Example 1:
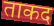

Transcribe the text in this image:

ताकद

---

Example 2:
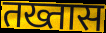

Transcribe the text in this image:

तख्तास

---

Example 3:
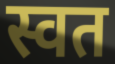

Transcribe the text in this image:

स्वत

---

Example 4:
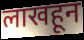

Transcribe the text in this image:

लाखहून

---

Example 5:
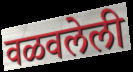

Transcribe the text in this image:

वळवलेली